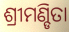
ଶ୍ରୀମଣ୍ଡିତା